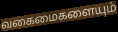
வகைமைகளையும்